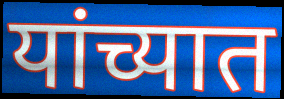
यांच्यात